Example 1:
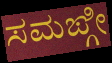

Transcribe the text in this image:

ಸಮಙ್ಗೀ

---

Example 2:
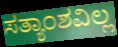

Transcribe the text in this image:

ಸತ್ಯಾಂಶವಿಲ್ಲ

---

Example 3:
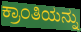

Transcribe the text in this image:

ಕ್ರಾಂತಿಯನ್ನು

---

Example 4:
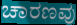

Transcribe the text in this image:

ಚಾರಣವು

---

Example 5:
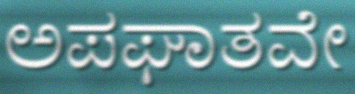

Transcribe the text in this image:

ಅಪಘಾತವೇ